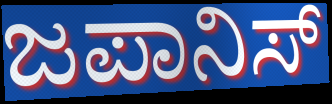
ಜಪಾನಿಸ್